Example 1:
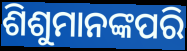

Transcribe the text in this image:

ଶିଶୁମାନଙ୍କପରି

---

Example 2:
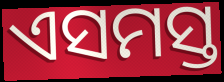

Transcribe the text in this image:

ଏସମସ୍ତ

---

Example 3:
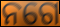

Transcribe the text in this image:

ନଗେ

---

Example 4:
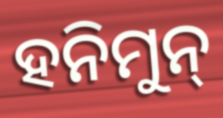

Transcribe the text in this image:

ହନିମୁନ୍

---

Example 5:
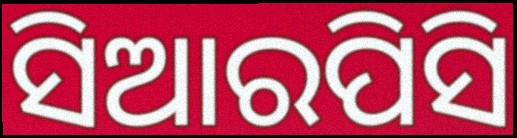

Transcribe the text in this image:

ସିଆରପିସି